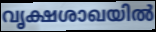
വൃക്ഷശാഖയിൽ